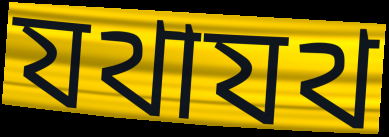
যথাযথ